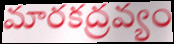
మారకద్రవ్యం